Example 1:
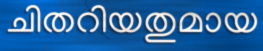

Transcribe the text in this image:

ചിതറിയതുമായ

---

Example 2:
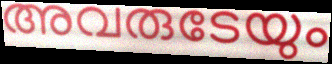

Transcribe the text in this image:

അവരുടേയും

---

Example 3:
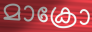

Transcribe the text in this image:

മാക്രോ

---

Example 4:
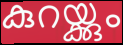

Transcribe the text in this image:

കുറയ്ക്കും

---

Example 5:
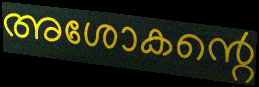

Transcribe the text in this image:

അശോകന്റെ